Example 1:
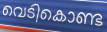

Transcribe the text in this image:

വെടികൊണ്ട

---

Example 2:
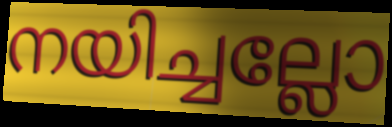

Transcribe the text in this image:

നയിച്ചല്ലോ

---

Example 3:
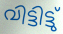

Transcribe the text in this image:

വിട്ടിട്ടു്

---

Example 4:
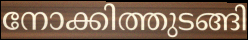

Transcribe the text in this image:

നോക്കിത്തുടങ്ങി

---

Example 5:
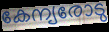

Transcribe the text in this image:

കേന്യരോടു